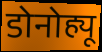
डोनोह्यू